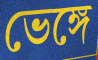
ভেঙ্গে